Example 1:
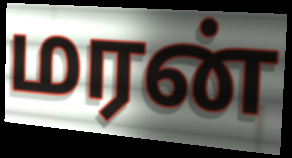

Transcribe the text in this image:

மரன்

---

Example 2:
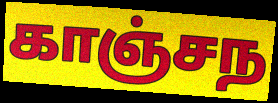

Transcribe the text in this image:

காஞ்சந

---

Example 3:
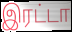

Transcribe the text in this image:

இரட்டா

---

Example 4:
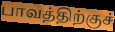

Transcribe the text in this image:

பாவத்திற்குச்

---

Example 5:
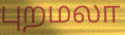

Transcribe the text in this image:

புறமலா